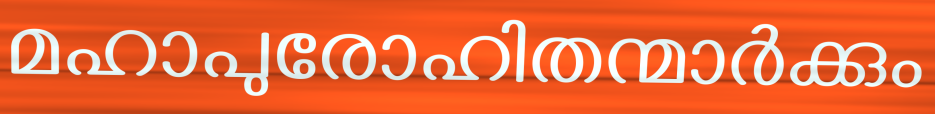
മഹാപുരോഹിതന്മാർക്കും